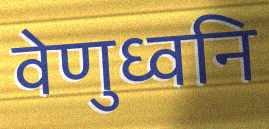
वेणुध्वनि